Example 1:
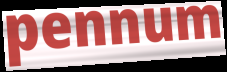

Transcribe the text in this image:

pennum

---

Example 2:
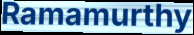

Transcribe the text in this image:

Ramamurthy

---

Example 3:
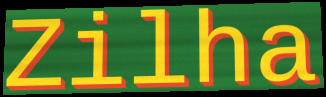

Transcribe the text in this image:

Zilha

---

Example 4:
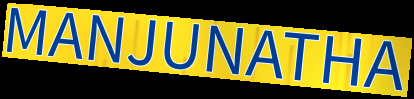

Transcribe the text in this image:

MANJUNATHA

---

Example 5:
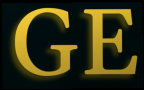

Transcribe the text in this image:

GE